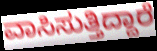
ವಾಸಿಸುತ್ತಿದ್ದಾರೆ